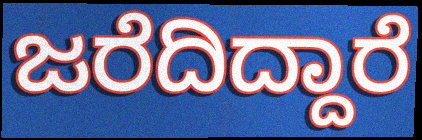
ಜರೆದಿದ್ದಾರೆ